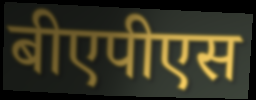
बीएपीएस